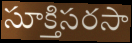
సూక్తిసరసా